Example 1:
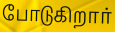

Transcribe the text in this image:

போடுகிறார்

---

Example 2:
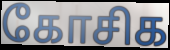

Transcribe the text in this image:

கோசிக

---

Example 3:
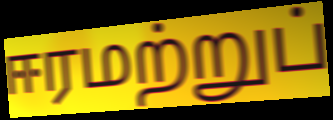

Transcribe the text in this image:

ஈரமற்றுப்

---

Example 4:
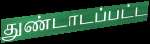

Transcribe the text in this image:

துண்டாடப்பட்ட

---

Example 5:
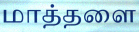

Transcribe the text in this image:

மாத்தளை